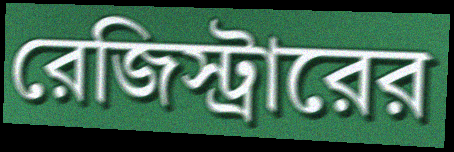
রেজিস্ট্রারের